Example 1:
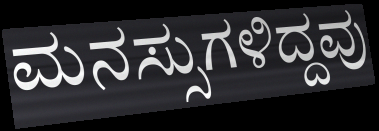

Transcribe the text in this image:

ಮನಸ್ಸುಗಳಿದ್ದವು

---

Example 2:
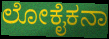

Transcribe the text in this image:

ಲೋಕೈಕನಾ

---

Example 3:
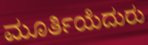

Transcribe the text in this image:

ಮೂರ್ತಿಯೆದುರು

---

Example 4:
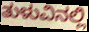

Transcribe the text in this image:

ತುಳುವಿನಲ್ಲಿ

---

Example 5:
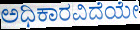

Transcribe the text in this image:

ಅಧಿಕಾರವಿದೆಯೇ